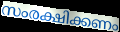
സംരക്ഷിക്കണം